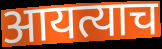
आयत्याच